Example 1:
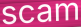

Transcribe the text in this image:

scam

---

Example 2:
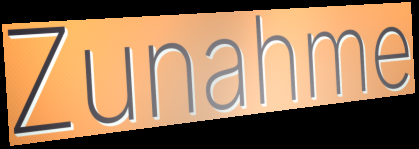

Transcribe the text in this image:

Zunahme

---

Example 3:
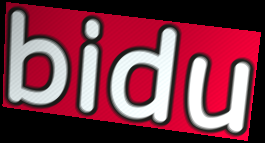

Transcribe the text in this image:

bidu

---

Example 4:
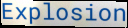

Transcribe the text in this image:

Explosion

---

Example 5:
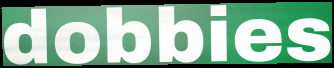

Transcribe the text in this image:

dobbies